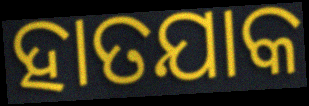
ହାତଯାକ